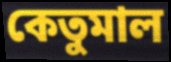
কেতুমাল